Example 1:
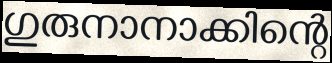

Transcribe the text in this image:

ഗുരുനാനാക്കിന്റെ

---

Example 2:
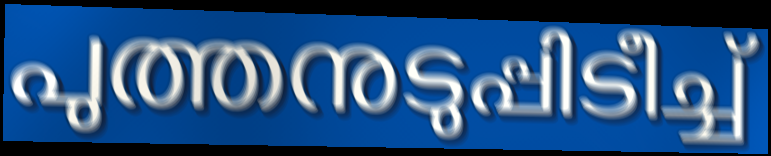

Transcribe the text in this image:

പുത്തനുടുപ്പിടീച്ച്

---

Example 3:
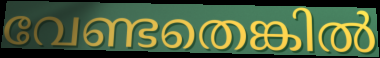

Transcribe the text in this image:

വേണ്ടതെങ്കിൽ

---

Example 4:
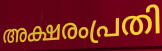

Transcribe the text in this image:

അക്ഷരംപ്രതി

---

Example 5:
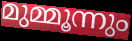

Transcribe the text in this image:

മുമ്മൂന്നും